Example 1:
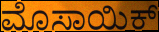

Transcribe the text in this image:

ಮೊಸಾಯಿಕ್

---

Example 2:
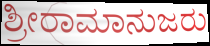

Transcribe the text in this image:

ಶ್ರೀರಾಮಾನುಜರು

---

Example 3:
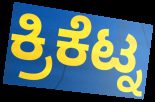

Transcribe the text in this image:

ಕ್ರಿಕೆಟ್ನ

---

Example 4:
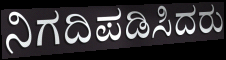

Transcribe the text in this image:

ನಿಗದಿಪಡಿಸಿದರು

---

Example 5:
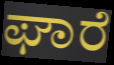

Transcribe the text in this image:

ಘಾರೆ